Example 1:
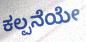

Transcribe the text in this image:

ಕಲ್ಪನೆಯೇ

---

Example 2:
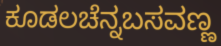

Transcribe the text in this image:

ಕೂಡಲಚೆನ್ನಬಸವಣ್ಣ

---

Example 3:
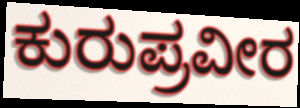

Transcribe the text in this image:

ಕುರುಪ್ರವೀರ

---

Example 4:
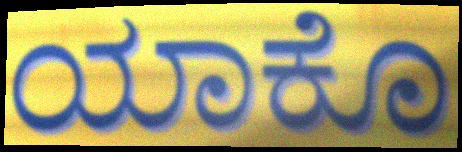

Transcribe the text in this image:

ಯಾಕೊ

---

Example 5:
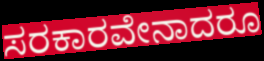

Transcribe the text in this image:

ಸರಕಾರವೇನಾದರೂ